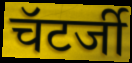
चॅटर्जी